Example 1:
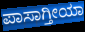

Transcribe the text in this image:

ಪಾಸಾಗ್ತೀಯಾ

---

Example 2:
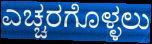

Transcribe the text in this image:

ಎಚ್ಚರಗೊಳ್ಳಲು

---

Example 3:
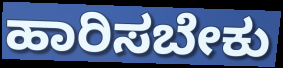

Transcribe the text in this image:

ಹಾರಿಸಬೇಕು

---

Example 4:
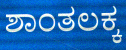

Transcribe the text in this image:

ಶಾಂತಲಕ್ಕ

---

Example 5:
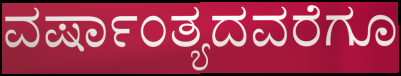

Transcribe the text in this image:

ವರ್ಷಾಂತ್ಯದವರೆಗೂ